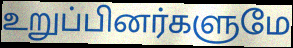
உறுப்பினர்களுமே